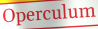
Operculum